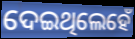
ଦେଇଥିଲେହେଁ